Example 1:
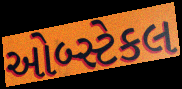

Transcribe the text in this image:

ઓબ્સ્ટેકલ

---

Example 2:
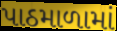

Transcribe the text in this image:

પાઠમાળામાં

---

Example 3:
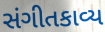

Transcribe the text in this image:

સંગીતકાવ્ય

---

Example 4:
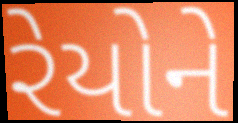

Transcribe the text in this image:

રેયોને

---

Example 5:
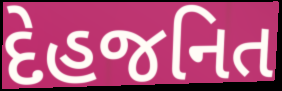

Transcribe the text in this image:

દેહજનિત